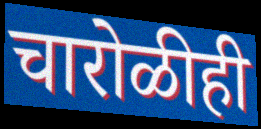
चारोळीही